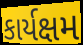
કાર્યક્ષમ